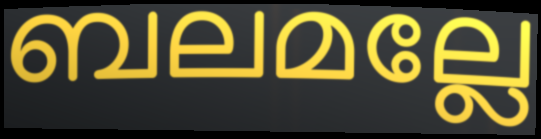
ബലമല്ലേ